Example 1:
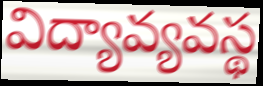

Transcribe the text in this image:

విద్యావ్యవస్థ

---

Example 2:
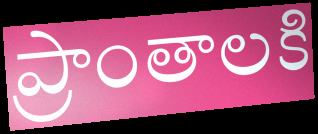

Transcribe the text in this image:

ప్రాంతాలకి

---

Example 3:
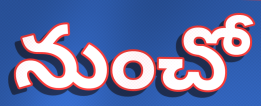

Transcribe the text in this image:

నుంచో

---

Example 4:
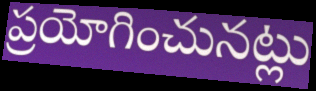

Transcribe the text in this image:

ప్రయోగించునట్లు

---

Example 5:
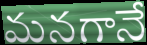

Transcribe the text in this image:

మనగానే